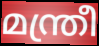
മന്ത്രീ